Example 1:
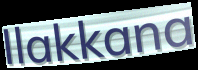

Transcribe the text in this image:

Ilakkana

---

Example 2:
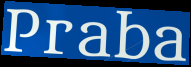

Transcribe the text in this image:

Praba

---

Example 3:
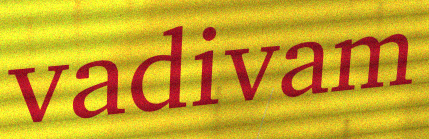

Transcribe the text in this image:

vadivam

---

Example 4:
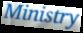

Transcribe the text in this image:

Ministry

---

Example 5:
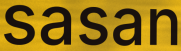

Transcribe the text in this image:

sasan